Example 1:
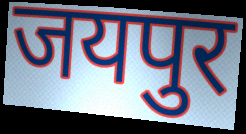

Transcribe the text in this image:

जयपुर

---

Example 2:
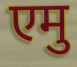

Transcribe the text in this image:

एमु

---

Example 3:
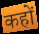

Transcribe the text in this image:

कहों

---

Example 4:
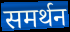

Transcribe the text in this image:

समर्थन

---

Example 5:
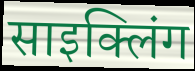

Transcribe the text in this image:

साइक्लिंग